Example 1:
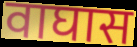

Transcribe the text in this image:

वाघास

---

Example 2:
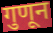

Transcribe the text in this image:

गुणून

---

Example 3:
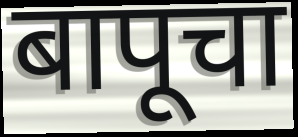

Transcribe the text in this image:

बापूचा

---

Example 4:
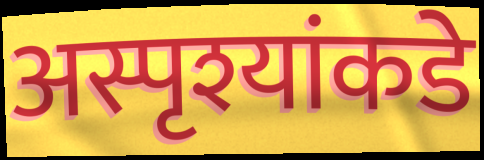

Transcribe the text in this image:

अस्पृश्यांकडे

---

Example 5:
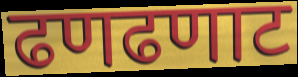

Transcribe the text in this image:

ढणढणाट